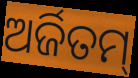
ଅର୍ଜିତମ୍